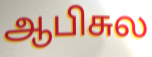
ஆபிசுல